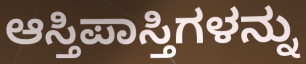
ಆಸ್ತಿಪಾಸ್ತಿಗಳನ್ನು